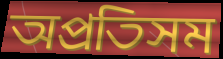
অপ্রতিসম